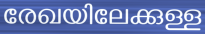
രേഖയിലേക്കുള്ള